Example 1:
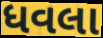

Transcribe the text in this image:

ધવલા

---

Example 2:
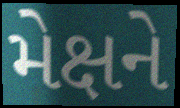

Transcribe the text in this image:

મેક્ષને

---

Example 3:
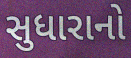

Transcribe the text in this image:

સુધારાનો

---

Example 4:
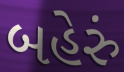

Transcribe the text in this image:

બહેરું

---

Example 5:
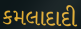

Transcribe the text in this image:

કમલાદાદી